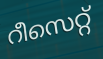
റീസെറ്റ്